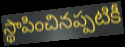
స్థాపించినప్పటికీ